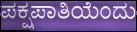
ಪಕ್ಷಪಾತಿಯೆಂದು